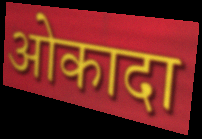
ओकादा